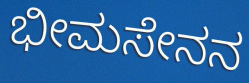
ಭೀಮಸೇನನ